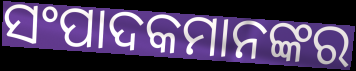
ସଂପାଦକମାନଙ୍କର